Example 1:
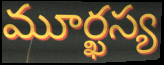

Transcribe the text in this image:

మూర్ఖస్య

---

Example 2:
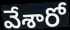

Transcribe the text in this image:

వేశారో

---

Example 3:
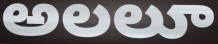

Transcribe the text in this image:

అలలూ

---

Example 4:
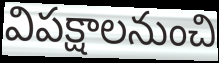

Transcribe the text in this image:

విపక్షాలనుంచి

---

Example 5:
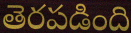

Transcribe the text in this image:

తెరపడింది